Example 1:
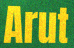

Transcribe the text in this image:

Arut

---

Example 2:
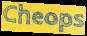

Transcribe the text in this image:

Cheops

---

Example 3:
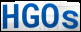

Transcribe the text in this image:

HGOs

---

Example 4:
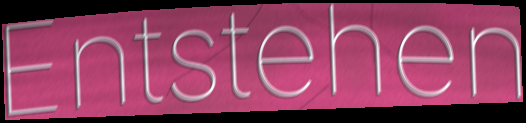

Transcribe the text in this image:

Entstehen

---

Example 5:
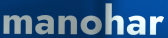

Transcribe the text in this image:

manohar